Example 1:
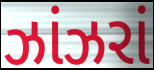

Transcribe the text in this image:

ઝાંઝરાં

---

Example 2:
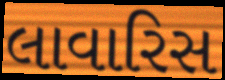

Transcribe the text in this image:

લાવારિસ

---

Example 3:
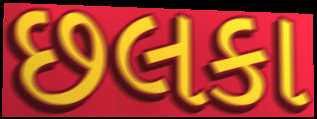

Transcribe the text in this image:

છલકા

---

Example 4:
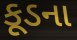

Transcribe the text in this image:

કૂડના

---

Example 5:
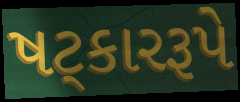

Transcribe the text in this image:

ષટ્કારરૂપે